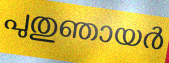
പുതുഞായർ